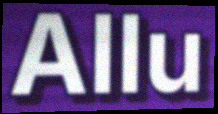
Allu